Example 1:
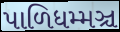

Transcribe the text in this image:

પાળિધમ્મઞ્ચ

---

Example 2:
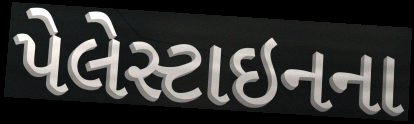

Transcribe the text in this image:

પેલેસ્ટાઇનના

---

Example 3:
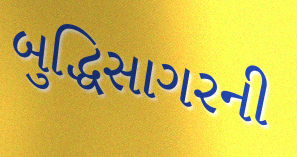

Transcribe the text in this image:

બુદ્ધિસાગરની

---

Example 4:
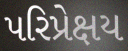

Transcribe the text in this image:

પરિપ્રેક્ષય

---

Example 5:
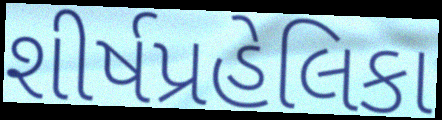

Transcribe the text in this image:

શીર્ષપ્રહેલિકા